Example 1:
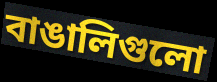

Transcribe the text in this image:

বাঙালিগুলো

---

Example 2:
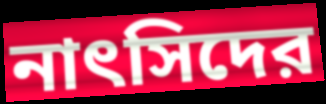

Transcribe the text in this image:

নাৎসিদের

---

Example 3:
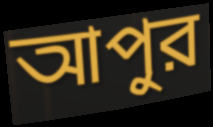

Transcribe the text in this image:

আপুর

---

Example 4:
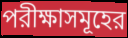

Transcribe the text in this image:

পরীক্ষাসমূহের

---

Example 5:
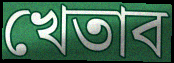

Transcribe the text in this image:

খেতাব